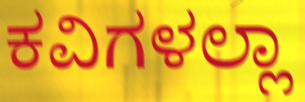
ಕವಿಗಳಲ್ಲಾ